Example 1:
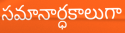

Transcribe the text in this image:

సమానార్ధకాలుగా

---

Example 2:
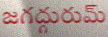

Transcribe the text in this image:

జగద్గురుమ్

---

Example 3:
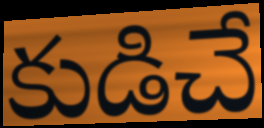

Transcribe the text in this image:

కుడిచే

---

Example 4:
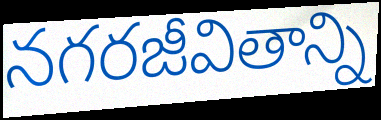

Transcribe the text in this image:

నగరజీవితాన్ని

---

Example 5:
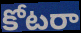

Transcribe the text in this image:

కోటరా